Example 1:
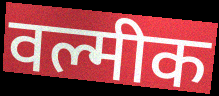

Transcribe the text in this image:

वल्मीक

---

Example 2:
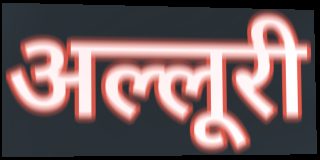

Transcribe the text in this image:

अल्लूरी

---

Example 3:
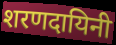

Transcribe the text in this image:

शरणदायिनी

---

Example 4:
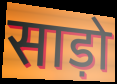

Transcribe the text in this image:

साड़ो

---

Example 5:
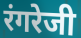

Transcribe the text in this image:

रंगरेजी